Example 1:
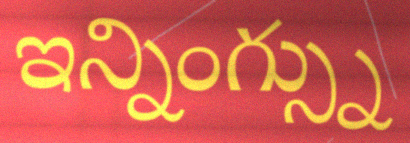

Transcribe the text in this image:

ఇన్నింగ్స్ను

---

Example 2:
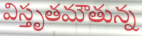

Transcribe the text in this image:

విస్తృతమౌతున్న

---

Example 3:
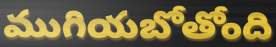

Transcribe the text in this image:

ముగియబోతోంది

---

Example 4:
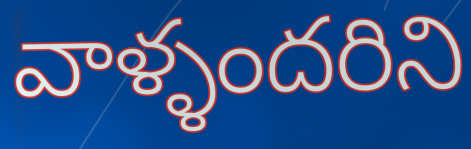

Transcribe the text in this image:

వాళ్ళందరిని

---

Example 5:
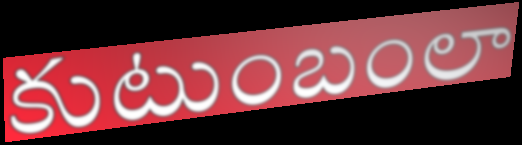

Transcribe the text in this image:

కుటుంబంలా